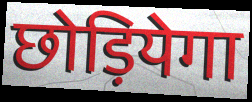
छोड़ियेगा